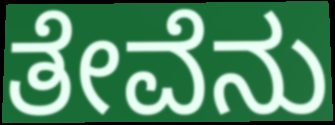
ತೇವೆನು